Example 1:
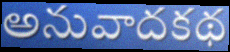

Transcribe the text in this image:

అనువాదకథ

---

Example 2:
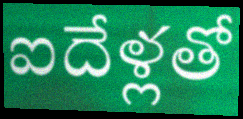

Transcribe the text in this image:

ఐదేళ్లతో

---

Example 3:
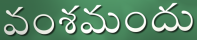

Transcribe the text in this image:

వంశమందు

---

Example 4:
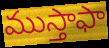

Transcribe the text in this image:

ముస్తాఫా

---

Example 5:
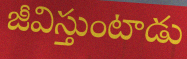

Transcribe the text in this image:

జీవిస్తుంటాడు